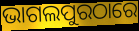
ଭାଗଲପୁରଠାରେ